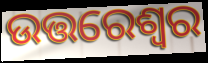
ଉତ୍ତରେଶ୍ୱର